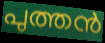
പുത്തൻ